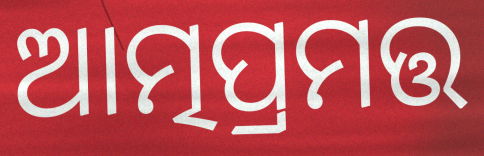
ଆତ୍ମପ୍ରମତ୍ତ